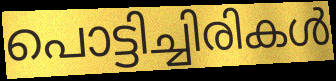
പൊട്ടിച്ചിരികൾ